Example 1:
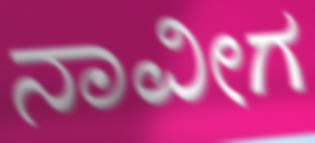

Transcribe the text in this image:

ನಾವೀಗ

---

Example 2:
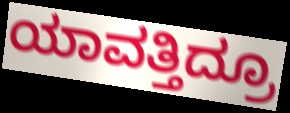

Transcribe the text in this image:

ಯಾವತ್ತಿದ್ರೂ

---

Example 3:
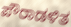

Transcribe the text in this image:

ಪೌರಾಡಳಿತ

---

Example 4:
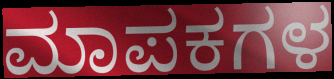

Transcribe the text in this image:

ಮಾಪಕಗಳ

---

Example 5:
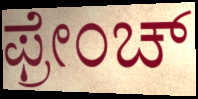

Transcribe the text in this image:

ಫ್ರೇಂಚ್